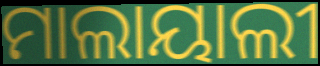
ମାଲାୟାଲୀ